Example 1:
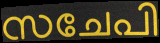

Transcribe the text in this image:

സചേപി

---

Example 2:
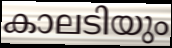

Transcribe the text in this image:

കാലടിയും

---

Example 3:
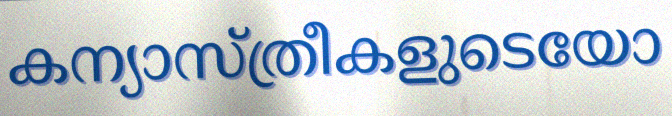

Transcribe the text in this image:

കന്യാസ്ത്രീകളുടെയോ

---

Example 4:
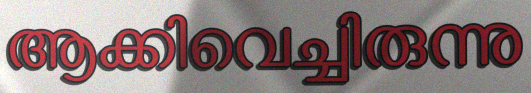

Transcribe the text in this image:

ആക്കിവെച്ചിരുന്നു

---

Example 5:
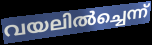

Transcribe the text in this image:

വയലിൽച്ചെന്ന്